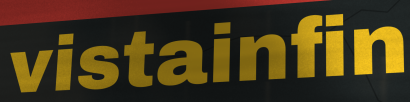
vistainfin